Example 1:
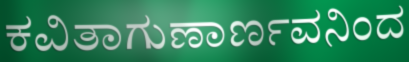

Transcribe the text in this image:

ಕವಿತಾಗುಣಾರ್ಣವನಿಂದ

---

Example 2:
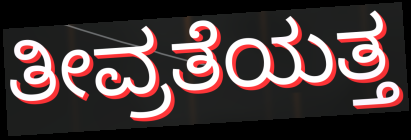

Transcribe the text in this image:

ತೀವ್ರತೆಯತ್ತ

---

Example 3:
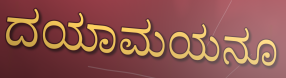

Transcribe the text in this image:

ದಯಾಮಯನೂ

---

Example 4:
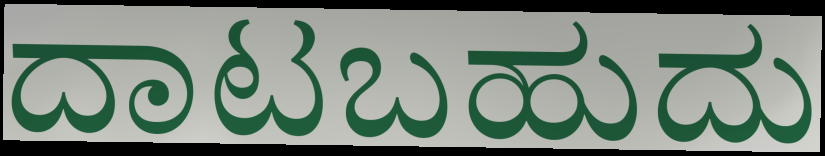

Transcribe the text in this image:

ದಾಟಬಹುದು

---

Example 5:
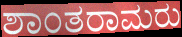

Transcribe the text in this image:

ಶಾಂತರಾಮರು